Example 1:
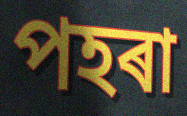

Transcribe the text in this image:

পহৰা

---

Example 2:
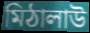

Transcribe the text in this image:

মিঠালাউ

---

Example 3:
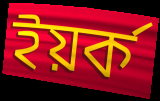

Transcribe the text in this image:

ইয়ৰ্ক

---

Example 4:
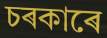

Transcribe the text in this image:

চৰকাৰে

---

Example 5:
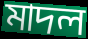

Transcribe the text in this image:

মাদল